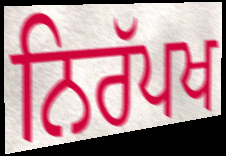
ਨਿਰੱਪਖ